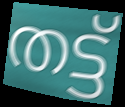
തട്ട്